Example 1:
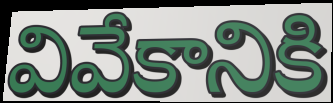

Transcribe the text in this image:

వివేకానికి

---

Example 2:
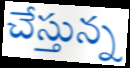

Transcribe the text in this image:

చేస్తున్న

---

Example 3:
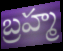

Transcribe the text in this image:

బ్రహ్మ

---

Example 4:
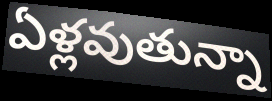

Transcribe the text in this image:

ఏళ్లవుతున్నా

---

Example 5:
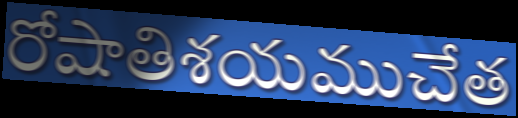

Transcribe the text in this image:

రోషాతిశయముచేత